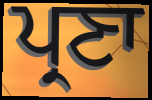
ਪ੍ਰਣਾ